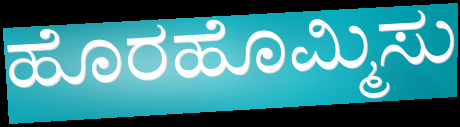
ಹೊರಹೊಮ್ಮಿಸು